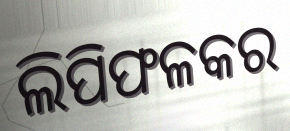
ଲିପିଫଳକର